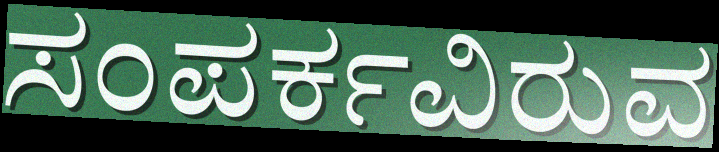
ಸಂಪರ್ಕವಿರುವ